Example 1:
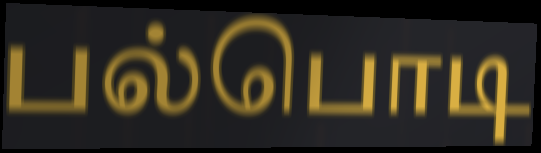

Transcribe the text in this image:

பல்பொடி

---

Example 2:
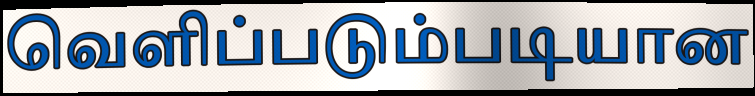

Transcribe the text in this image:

வெளிப்படும்படியான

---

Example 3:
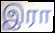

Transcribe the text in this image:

இரா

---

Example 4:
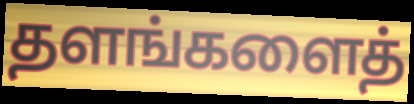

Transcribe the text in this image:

தளங்களைத்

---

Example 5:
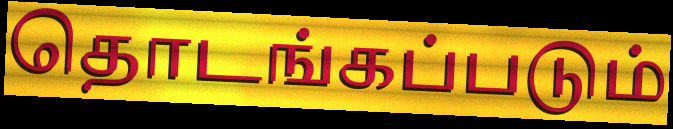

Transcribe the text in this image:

தொடங்கப்படும்